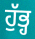
ਹੁੱਭ੍ਹ